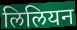
लिलियन